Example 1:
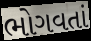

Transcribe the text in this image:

ભોગવતાં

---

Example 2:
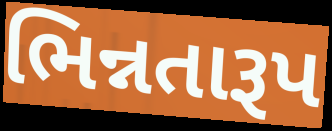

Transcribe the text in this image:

ભિન્નતારૂપ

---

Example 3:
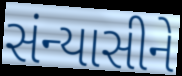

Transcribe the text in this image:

સંન્યાસીને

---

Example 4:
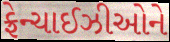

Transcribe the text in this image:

ફ્રેન્ચાઈઝીઓને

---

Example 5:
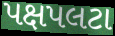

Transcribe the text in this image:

પક્ષપલટા